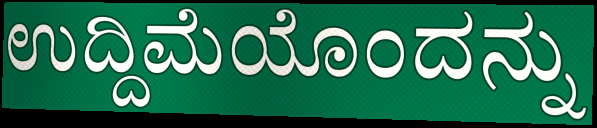
ಉದ್ದಿಮೆಯೊಂದನ್ನು